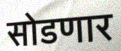
सोडणार